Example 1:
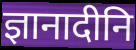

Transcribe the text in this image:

ज्ञानादीनि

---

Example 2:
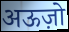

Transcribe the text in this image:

अऊज़ो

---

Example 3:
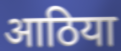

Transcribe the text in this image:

आठिया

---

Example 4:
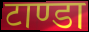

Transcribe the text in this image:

टाण्डा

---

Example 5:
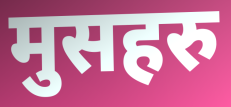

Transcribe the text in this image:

मुसहरु